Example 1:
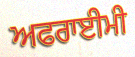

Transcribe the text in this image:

ਅਫਰਾਈਮੀ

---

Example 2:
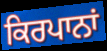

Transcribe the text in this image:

ਕਿਰਪਾਨਾਂ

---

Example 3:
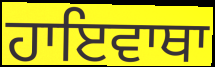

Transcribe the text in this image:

ਹਾਇਵਾਥਾ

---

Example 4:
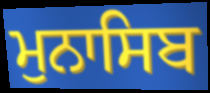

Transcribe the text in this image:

ਮੁਨਾਸਿਬ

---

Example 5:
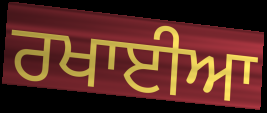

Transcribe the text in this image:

ਰਖਾਈਆ